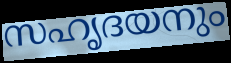
സഹൃദയനും